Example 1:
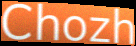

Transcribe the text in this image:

Chozh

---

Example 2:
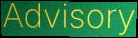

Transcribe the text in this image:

Advisory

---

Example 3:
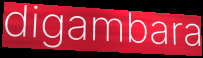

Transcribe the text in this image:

digambara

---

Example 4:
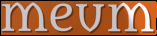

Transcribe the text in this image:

meum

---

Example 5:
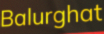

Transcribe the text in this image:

Balurghat